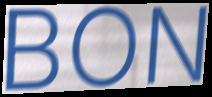
BON